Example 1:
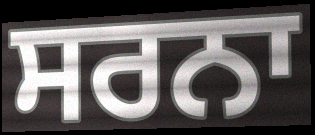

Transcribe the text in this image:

ਸਰਨਾ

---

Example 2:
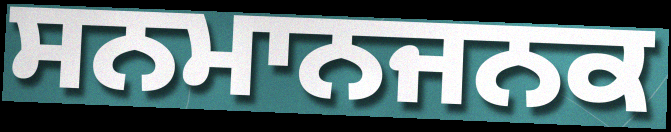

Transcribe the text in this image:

ਸਨਮਾਨਜਨਕ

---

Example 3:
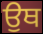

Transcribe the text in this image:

ਉਥ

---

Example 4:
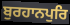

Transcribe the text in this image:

ਬੁਰਹਾਨਪੁਰਿ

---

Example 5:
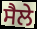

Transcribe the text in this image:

ਸੈਲੇ